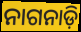
ନାଗନାଡ଼ି